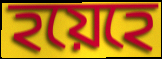
হয়েহে